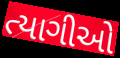
ત્યાગીઓ